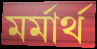
মর্মার্থ